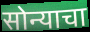
सोन्याचा